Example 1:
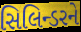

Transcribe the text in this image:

સિલિન્ડરને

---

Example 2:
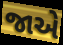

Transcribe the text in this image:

જાએ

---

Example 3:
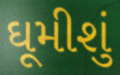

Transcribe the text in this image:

ઘૂમીશું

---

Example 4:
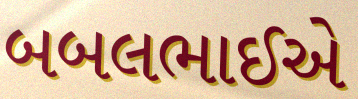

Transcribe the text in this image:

બબલભાઈએ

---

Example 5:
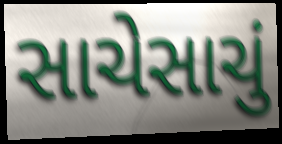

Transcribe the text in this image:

સાચેસાચું